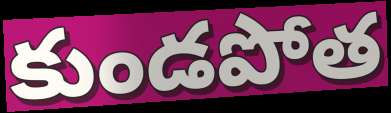
కుండపోత